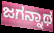
ಜಗನ್ನಾಥ